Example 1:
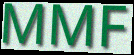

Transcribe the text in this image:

MMF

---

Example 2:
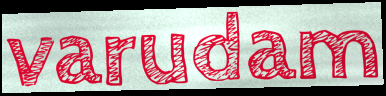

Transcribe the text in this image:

varudam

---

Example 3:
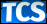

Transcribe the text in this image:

TCS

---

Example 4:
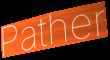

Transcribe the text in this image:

Pather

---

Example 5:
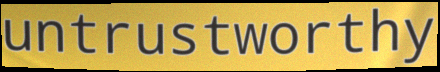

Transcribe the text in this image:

untrustworthy